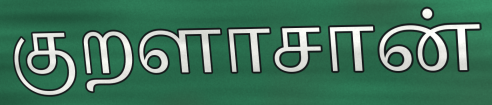
குறளாசான்